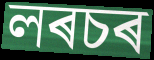
লৰচৰ